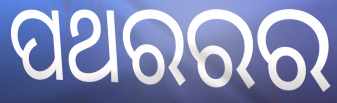
ପଥରରର